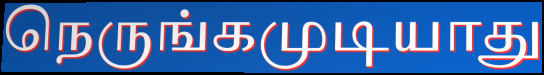
நெருங்கமுடியாது